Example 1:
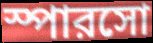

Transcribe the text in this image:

স্পারসো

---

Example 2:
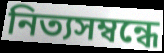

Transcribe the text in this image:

নিত্যসম্বন্ধে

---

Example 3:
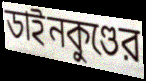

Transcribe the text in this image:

ডাইনকুণ্ডের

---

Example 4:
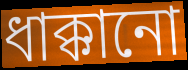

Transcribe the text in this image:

ধাক্কানো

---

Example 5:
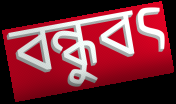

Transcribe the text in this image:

বন্ধুবৎ